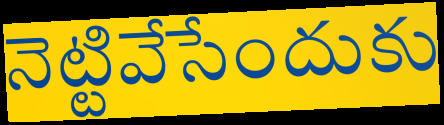
నెట్టివేసేందుకు